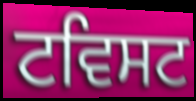
ਟਵਿਸਟ